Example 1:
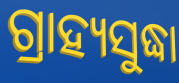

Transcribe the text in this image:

ଗ୍ରାହ୍ୟସୁଦ୍ଧା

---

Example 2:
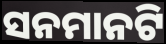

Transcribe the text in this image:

ସନମାନଟି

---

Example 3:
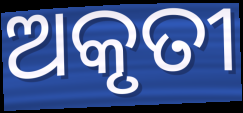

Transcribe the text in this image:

ଅକୃତୀ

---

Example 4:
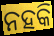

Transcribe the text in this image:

ନହକି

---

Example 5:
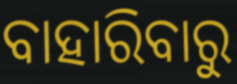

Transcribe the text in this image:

ବାହାରିବାରୁ